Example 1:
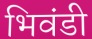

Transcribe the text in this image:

भिवंडी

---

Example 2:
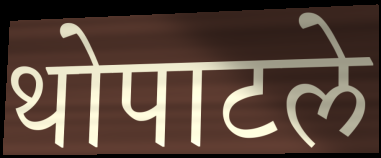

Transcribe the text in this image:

थोपाटले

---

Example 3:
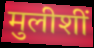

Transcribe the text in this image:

मुलीशीं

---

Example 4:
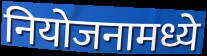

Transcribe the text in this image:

नियोजनामध्ये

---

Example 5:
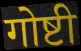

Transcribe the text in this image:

गोष्टी